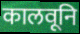
कालवूनि